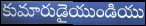
కుమారుడైయుండియు